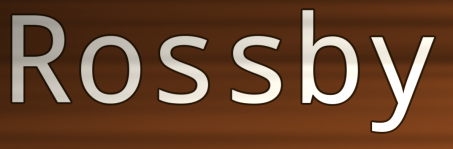
Rossby